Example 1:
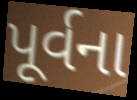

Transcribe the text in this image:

પૂર્વના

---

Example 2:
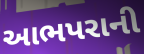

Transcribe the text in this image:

આભપરાની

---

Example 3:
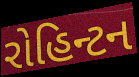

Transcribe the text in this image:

રોહિન્ટન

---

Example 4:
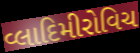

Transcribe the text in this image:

વ્લાદિમીરોવિચ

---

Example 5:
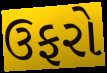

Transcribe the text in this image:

ઉફરો